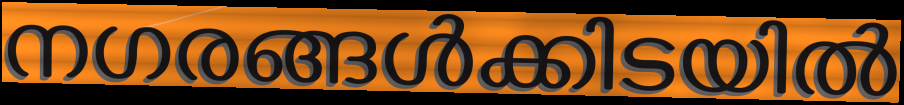
നഗരങ്ങൾക്കിടയിൽ